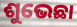
ଶୁଭେଛା